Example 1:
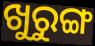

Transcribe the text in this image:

ଖୁରୁଙ୍ଗ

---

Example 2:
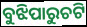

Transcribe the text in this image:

ବୁଝିପାରୁଚଟି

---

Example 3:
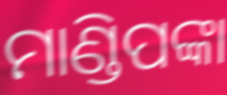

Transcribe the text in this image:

ମାଣ୍ଡିପଙ୍କା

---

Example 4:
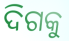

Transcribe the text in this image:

ଦିଗକୁ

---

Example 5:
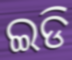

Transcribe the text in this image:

ଇଡି